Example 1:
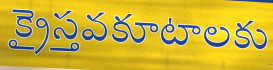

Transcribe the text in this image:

క్రైస్తవకూటాలకు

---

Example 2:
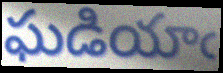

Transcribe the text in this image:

ఘడియాఁ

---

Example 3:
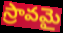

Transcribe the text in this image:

స్రావమై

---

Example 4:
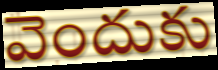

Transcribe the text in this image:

వెందుకు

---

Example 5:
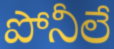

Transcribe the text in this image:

పోనీలే